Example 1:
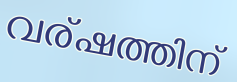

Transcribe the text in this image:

വര്ഷത്തിന്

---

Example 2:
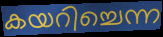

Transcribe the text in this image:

കയറിച്ചെന്ന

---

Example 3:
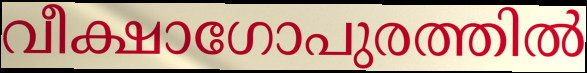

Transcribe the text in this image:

വീക്ഷാഗോപുരത്തിൽ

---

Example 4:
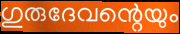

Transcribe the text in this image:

ഗുരുദേവന്റെയും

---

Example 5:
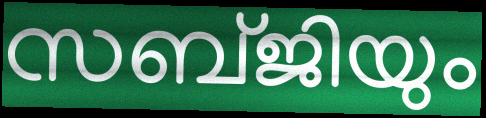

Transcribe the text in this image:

സബ്ജിയും